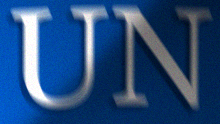
UN